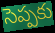
సెప్పకు